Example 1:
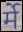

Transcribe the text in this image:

र्मे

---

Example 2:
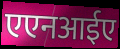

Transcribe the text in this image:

एएनआईए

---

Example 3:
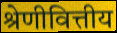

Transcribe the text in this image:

श्रेणीवित्तीय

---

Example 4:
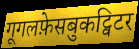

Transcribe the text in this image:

गूगलफ़ेसबुकट्विटर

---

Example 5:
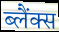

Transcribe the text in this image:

ब्लैंक्स